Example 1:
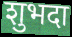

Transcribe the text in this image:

शुभदा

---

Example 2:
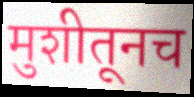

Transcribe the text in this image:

मुशीतूनच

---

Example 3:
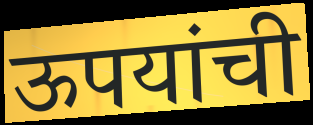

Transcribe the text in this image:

ऊपयांची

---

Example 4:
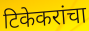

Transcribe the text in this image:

टिकेकरांचा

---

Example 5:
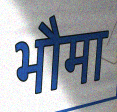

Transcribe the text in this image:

भौमा